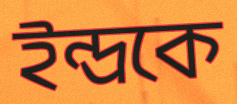
ইন্দ্রকে